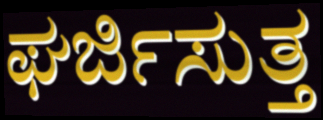
ಘರ್ಜಿಸುತ್ತ